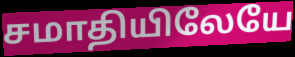
சமாதியிலேயே